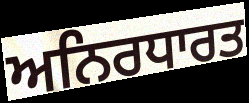
ਅਨਿਰਧਾਰਤ